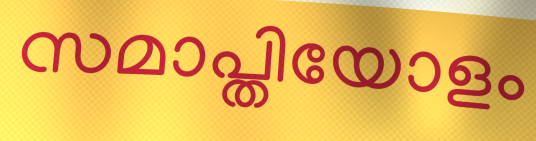
സമാപ്തിയോളം